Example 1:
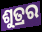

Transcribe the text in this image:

ଶୁତ୍ରର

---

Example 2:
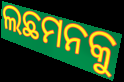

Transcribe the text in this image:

ଲଛମନକୁ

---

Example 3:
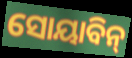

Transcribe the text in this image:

ସୋୟାବିନ୍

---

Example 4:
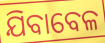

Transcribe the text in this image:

ଯିବାବେଳ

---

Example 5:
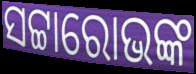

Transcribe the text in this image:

ସଟ୍ଟାରୋଭଙ୍କ